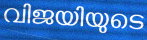
വിജയിയുടെ